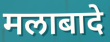
मलाबादे